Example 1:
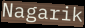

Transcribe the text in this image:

Nagarik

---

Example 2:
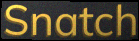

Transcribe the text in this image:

Snatch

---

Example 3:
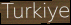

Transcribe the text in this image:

Turkiye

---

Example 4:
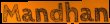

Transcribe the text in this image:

Mandhan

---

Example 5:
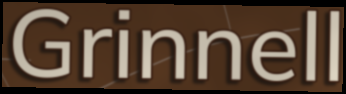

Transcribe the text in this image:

Grinnell